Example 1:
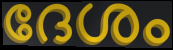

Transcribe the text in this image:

ദേശം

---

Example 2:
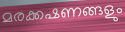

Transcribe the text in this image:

മരക്കഷണങ്ങളും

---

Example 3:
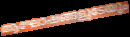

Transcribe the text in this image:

ആഘോഷങ്ങളുടേയും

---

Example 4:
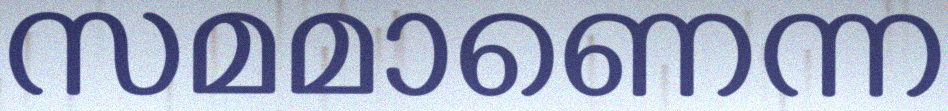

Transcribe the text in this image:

സമമാണെന്ന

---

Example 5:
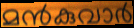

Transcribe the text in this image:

മൻകുവാർ